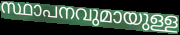
സ്ഥാപനവുമായുള്ള